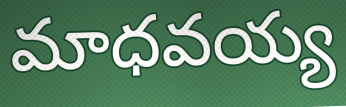
మాధవయ్య